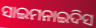
ସାଇମନାଇଦିସ